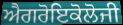
ਐਗਰੋਇਕੋਲੋਜੀ